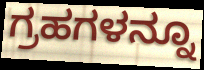
ಗ್ರಹಗಳನ್ನೂ